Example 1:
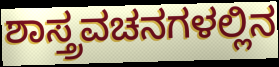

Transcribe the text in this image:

ಶಾಸ್ತ್ರವಚನಗಳಲ್ಲಿನ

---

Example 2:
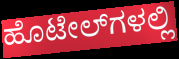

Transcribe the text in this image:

ಹೊಟೇಲ್‌ಗಳಲ್ಲಿ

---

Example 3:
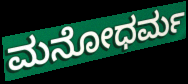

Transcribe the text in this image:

ಮನೋಧರ್ಮ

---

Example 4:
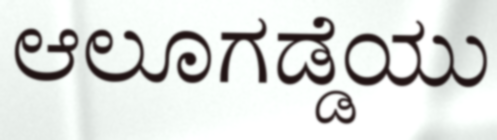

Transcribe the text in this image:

ಆಲೂಗಡ್ಡೆಯು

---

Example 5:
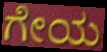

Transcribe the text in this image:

ಗೇಯ